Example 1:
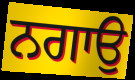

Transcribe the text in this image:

ਨਗਾਉ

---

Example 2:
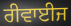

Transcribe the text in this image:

ਰੀਵਾਈਜ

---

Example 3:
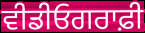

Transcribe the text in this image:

ਵੀਡੀਓਗਰਾਫ਼ੀ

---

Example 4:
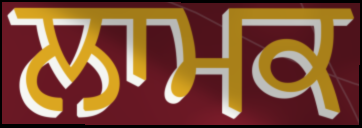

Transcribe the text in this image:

ਲਾਮਕ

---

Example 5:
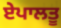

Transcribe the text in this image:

ਏਪਾਲਤੂ